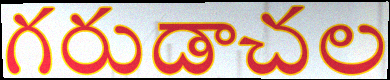
గరుడాచల